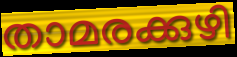
താമരക്കുഴി